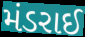
મંડરાઈ